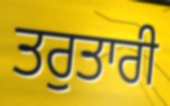
ਤਰੁਤਾਰੀ